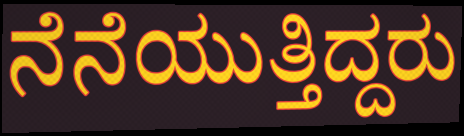
ನೆನೆಯುತ್ತಿದ್ದರು